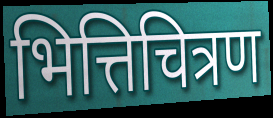
भित्तिचित्रण